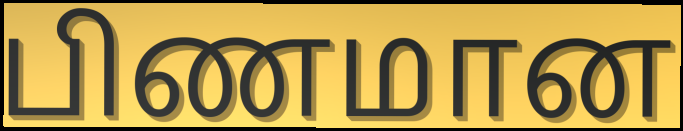
பிணமான